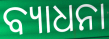
ବ୍ୟାଧନା